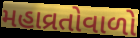
મહાવ્રતોવાળો